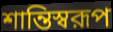
শান্তিস্বরূপ